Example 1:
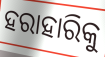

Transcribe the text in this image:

ହରାହାରିକୁ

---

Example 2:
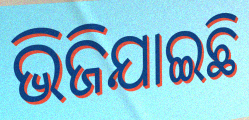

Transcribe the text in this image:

ଭିଜିଯାଇଛି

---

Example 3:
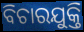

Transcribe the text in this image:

ବିଚାରଯୁକ୍ତି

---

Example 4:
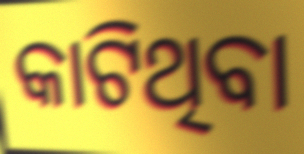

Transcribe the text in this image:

କାଟିଥିବା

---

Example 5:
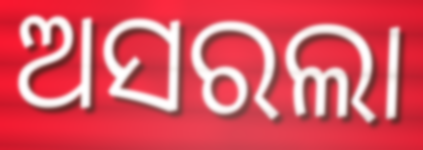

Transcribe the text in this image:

ଅସରଲା